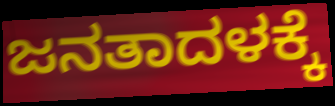
ಜನತಾದಳಕ್ಕೆ